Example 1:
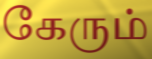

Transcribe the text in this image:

கேரும்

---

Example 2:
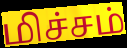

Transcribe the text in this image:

மிச்சம்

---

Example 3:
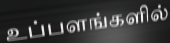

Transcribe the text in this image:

உப்பளங்களில்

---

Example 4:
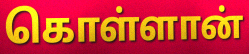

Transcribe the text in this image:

கொள்ளான்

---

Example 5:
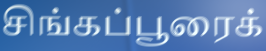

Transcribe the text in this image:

சிங்கப்பூரைக்